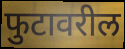
फुटावरील